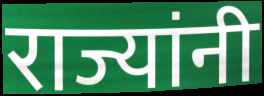
राज्यांनी